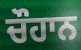
ਚੌਹਾਨ